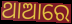
ଥାଆରେ